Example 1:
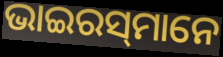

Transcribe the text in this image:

ଭାଇରସ୍‌ମାନେ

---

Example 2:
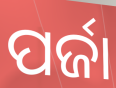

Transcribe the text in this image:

ପର୍ଜା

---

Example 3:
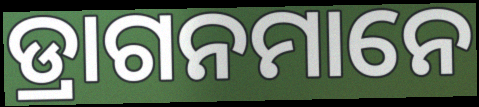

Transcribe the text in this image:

ଡ୍ରାଗନମାନେ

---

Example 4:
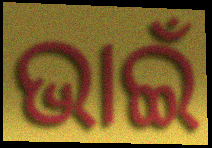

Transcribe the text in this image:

ଭାଇଁ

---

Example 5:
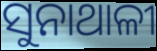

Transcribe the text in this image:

ସୁନାଥାଳୀ